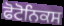
ਫੋਟੋਨਿਕਸ